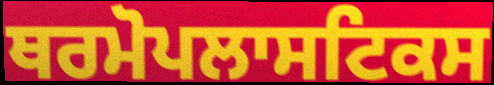
ਥਰਮੋਪਲਾਸਟਿਕਸ